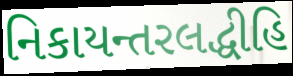
નિકાયન્તરલદ્ધીહિ